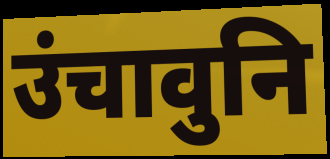
उंचावुनि